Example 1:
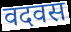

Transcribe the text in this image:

वदवस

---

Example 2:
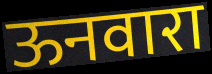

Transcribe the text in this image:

ऊनवारा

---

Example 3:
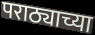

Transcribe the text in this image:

पराठ्याच्या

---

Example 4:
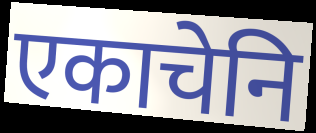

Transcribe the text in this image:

एकाचेनि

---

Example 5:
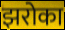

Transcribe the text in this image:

झरोका